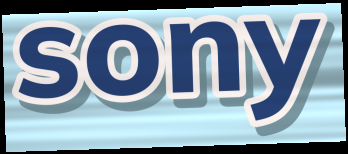
sony